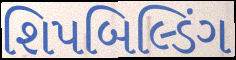
શિપબિલ્ડિંગ